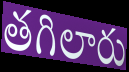
తగిలారు